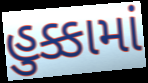
હુક્કામાં